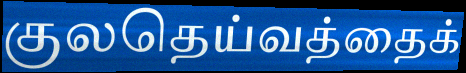
குலதெய்வத்தைக்